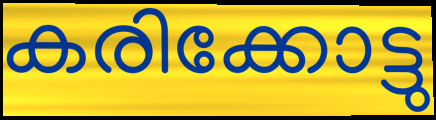
കരിക്കോട്ടു